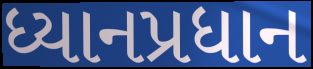
ધ્યાનપ્રધાન